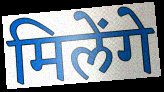
मिलेंगे